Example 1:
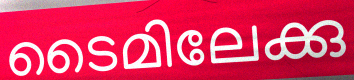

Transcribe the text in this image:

ടൈമിലേക്കു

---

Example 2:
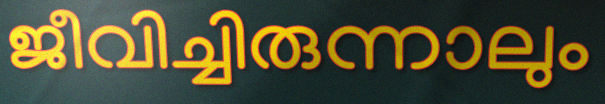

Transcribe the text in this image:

ജീവിച്ചിരുന്നാലും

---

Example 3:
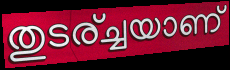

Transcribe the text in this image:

തുടര്ച്ചയാണ്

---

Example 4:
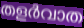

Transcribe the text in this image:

തളർവാത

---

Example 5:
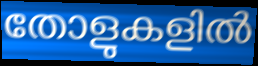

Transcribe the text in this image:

തോളുകളിൽ